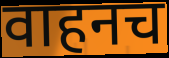
वाहनच